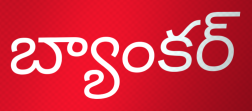
బ్యాంకర్